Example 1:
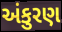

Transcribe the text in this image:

અંકુરણ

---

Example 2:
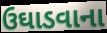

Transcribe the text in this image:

ઉઘાડવાના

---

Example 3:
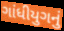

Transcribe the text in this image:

ગાંધીયુગનું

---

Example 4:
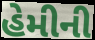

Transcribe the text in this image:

હેમીની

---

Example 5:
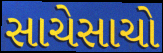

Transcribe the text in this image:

સાચેસાચો